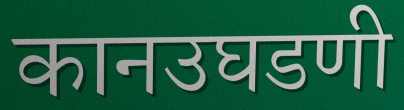
कानउघडणी